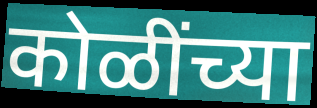
कोळींच्या